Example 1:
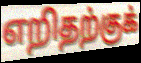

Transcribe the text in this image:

எறிதற்குக்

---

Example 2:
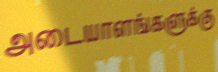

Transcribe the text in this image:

அடையாளங்களுக்கு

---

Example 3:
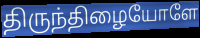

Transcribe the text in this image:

திருந்திழையோளே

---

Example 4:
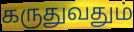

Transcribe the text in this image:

கருதுவதும்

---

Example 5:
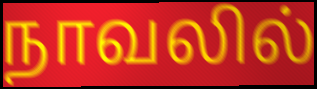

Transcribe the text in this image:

நாவலில்